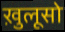
ख़ुलूसो